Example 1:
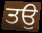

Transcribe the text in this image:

ਤਉ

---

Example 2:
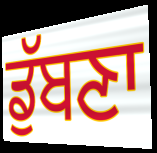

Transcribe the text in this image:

ਡੁੱਬਣਾ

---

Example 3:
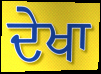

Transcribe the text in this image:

ਦੇਖਾ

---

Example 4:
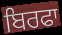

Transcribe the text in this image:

ਬਿਰਫਾ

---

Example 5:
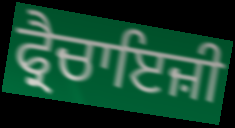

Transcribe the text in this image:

ਫ੍ਰੈਚਾਇਜ਼ੀ